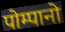
पोम्पानो